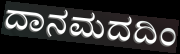
ದಾನಮದದಿಂ